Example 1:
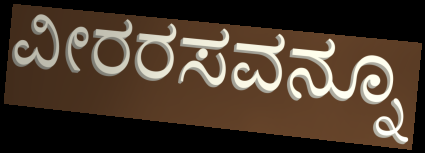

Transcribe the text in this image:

ವೀರರಸವನ್ನೂ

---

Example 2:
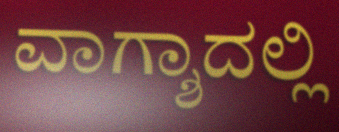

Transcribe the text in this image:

ವಾಗ್ಶಾದಲ್ಲಿ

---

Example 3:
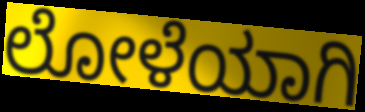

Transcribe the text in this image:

ಲೋಳೆಯಾಗಿ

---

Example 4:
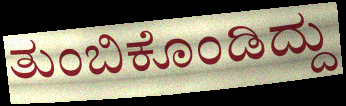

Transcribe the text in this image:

ತುಂಬಿಕೊಂಡಿದ್ದು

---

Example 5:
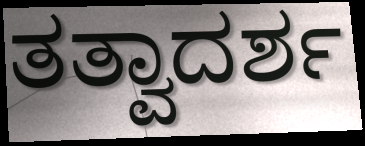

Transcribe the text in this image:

ತತ್ವಾದರ್ಶ